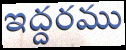
ఇద్దరము